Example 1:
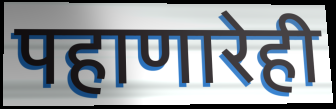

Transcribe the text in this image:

पहाणारेही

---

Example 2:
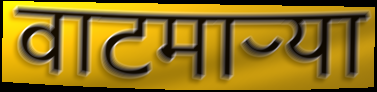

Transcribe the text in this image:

वाटमाऱ्या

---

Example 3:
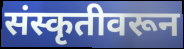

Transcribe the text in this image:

संस्कृतीवरून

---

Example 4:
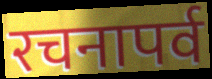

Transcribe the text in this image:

रचनापर्व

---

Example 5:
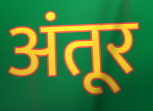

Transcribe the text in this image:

अंतूर